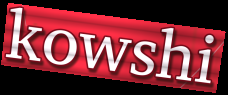
kowshi